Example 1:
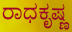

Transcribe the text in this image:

ರಾಧಕೃಷ್ಣ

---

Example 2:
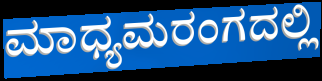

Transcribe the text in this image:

ಮಾಧ್ಯಮರಂಗದಲ್ಲಿ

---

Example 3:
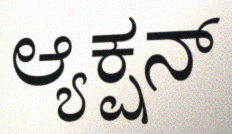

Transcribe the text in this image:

ಆ್ಯಕ್ಷನ್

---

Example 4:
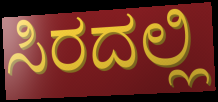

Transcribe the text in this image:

ಸಿರದಲ್ಲಿ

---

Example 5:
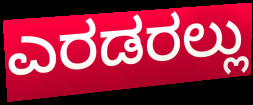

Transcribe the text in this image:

ಎರಡರಲ್ಲು